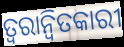
ତ୍ୱରାନ୍ୱିତକାରୀ